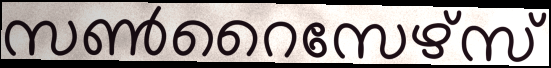
സൺറൈസേഴ്സ്